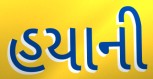
હયાની